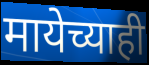
मायेच्याही